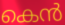
കെൻ